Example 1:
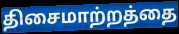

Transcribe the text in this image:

திசைமாற்றத்தை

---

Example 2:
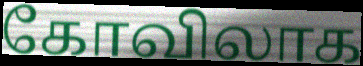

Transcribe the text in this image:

கோவிலாக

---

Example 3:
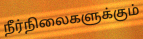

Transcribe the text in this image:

நீர்நிலைகளுக்கும்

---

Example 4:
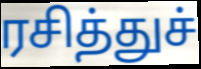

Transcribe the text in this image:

ரசித்துச்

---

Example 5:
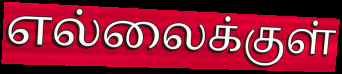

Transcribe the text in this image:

எல்லைக்குள்